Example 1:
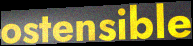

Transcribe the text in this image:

ostensible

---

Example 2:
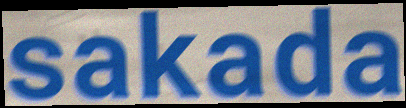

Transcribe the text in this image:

sakada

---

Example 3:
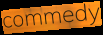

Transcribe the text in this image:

commedy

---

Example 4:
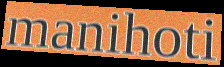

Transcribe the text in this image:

manihoti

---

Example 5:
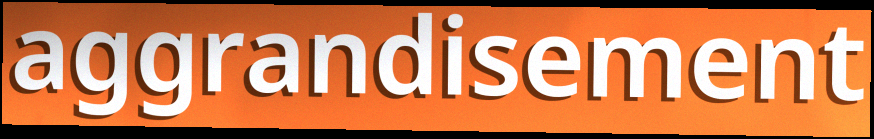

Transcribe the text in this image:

aggrandisement